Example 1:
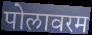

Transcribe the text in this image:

पोलावरम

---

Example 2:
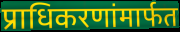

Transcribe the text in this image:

प्राधिकरणांमार्फत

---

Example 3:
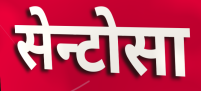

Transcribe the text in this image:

सेन्टोसा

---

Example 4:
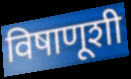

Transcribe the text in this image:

विषाणूशी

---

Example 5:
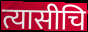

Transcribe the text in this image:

त्यासीचि